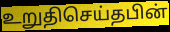
உறுதிசெய்தபின்